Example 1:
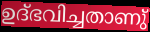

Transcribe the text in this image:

ഉദ്ഭവിച്ചതാണു്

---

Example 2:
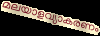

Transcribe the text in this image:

മലയാളവ്യാകരണം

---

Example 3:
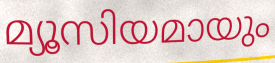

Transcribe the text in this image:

മ്യൂസിയമായും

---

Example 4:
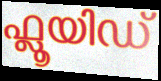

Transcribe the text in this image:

ഫ്ലൂയിഡ്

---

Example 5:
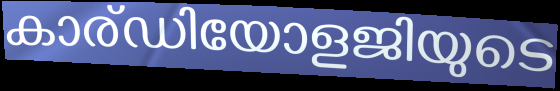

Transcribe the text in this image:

കാര്ഡിയോളജിയുടെ